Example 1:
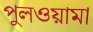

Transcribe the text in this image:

পুলওয়ামা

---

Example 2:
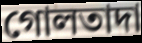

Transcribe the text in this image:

গোলতাদা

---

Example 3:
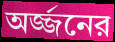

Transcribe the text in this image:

অর্জ্জনের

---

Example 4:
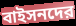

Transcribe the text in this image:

বাইসনদের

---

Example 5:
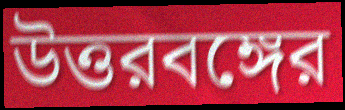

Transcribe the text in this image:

উত্তরবঙ্গের